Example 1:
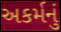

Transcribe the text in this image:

અકર્મનું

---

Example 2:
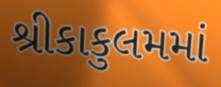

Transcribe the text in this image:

શ્રીકાકુલમમાં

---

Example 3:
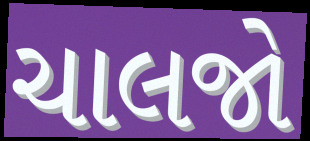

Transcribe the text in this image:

ચાલજો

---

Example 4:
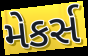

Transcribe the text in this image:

મેકર્સ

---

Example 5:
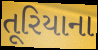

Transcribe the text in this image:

તૂરિયાના